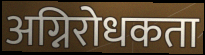
अग्निरोधकता